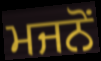
ਮਜਨੋਂ